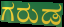
ಗರುಡ